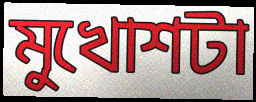
মুখোশটা